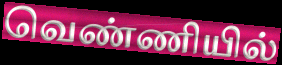
வெண்ணியில்